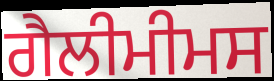
ਗੈਲੀਮੀਮਸ